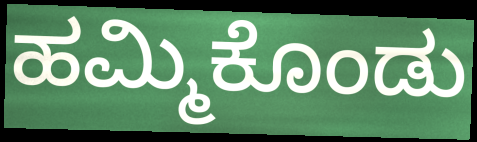
ಹಮ್ಮಿಕೊಂಡು